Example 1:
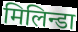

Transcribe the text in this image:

मिलिन्डा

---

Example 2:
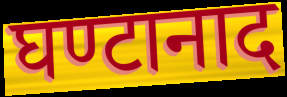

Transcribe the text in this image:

घण्टानाद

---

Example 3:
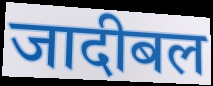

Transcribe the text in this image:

जादीबल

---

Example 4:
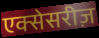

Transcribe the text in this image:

एक्सेसरीज़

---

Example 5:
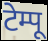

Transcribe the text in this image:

टेम्पू